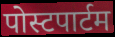
पोस्टपार्टम